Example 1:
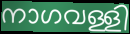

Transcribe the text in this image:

നാഗവള്ളി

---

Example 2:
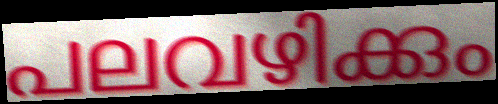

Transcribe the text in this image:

പലവഴിക്കും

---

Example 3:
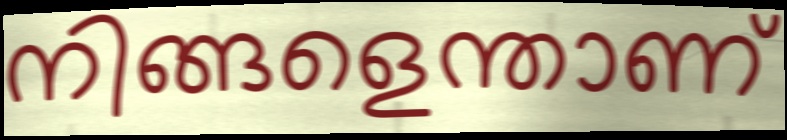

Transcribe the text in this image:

നിങ്ങളെന്താണ്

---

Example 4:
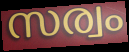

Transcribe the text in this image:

സര്വം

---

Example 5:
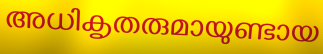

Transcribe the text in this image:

അധികൃതരുമായുണ്ടായ